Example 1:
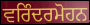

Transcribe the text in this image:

ਵਰਿੰਦਰਮੋਹਨ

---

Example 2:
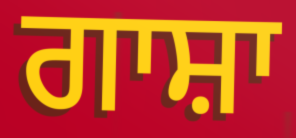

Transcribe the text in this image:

ਗਾਸ਼ਾ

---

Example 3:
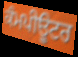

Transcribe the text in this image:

ਕੰਮਪੀਊਟਰ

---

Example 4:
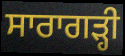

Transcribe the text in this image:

ਸਾਰਾਗੜ੍ਹੀ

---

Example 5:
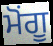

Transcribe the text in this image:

ਮੋਂਗੂ